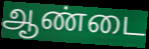
ஆண்டை